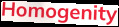
Homogenity